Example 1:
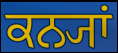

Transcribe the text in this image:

ਕਨ੍ਯਾਂ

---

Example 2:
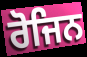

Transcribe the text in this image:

ਰੋਜਿਨ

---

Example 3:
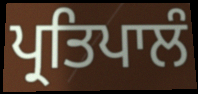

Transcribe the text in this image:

ਪ੍ਰਤਿਪਾਲੰ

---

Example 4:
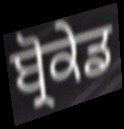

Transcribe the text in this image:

ਬ੍ਰੋਕੇਡ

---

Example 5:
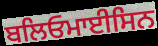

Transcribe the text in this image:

ਬਲਿਓਮਾਈਸਿਨ